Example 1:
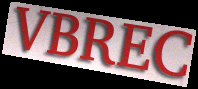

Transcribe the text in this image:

VBREC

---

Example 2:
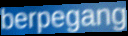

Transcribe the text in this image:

berpegang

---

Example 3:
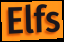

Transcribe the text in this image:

Elfs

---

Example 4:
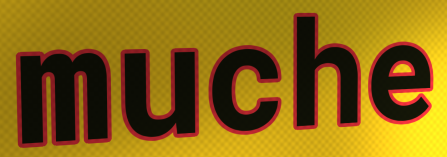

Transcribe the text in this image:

muche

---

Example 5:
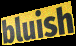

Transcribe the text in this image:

bluish